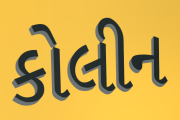
કોલીન